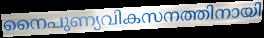
നൈപുണ്യവികസനത്തിനായി